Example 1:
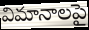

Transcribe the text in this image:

విమానాలపై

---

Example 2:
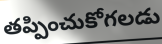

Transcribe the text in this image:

తప్పించుకోగలడు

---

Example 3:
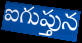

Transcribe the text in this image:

ఐగుప్తున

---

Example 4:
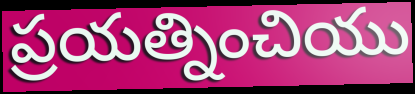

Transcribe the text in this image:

ప్రయత్నించియు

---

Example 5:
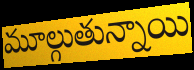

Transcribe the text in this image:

మూల్గుతున్నాయి